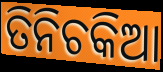
ତିନିଚକିଆ